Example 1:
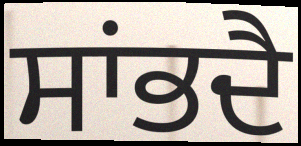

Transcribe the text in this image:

ਸਾਂਭਦੈ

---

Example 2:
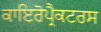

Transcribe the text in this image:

ਕਾਇਰੋਪ੍ਰੈਕਟਰਸ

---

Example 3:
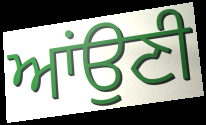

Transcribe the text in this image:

ਆਂਉਣੀ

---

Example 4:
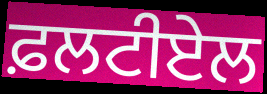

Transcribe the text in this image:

ਫ਼ਲਟੀਏਲ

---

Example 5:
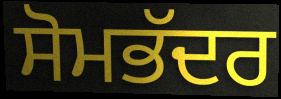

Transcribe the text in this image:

ਸੋਮਭੱਦਰ